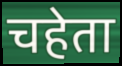
चहेता